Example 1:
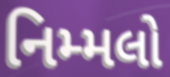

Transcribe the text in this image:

નિમ્મલો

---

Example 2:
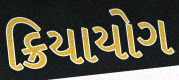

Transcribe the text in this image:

ક્રિયાયોગ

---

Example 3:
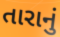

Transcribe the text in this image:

તારાનું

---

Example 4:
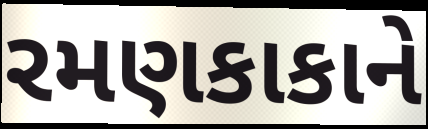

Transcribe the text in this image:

રમણકાકાને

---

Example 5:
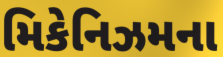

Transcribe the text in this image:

મિકેનિઝમના